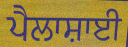
ਪੈਲਾਸ਼ਾਈ